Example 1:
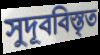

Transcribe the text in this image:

সুদূববিস্তৃত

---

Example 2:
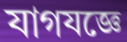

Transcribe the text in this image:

যাগযজ্ঞে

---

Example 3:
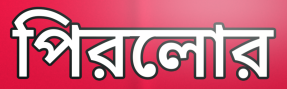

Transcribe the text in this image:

পিরলোর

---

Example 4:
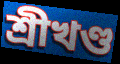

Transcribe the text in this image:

শ্রীখণ্ড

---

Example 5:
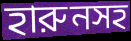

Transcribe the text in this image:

হারুনসহ